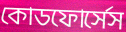
কোডফোর্সেস